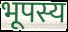
भूपस्य